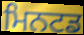
ਮਿਨਟਡ